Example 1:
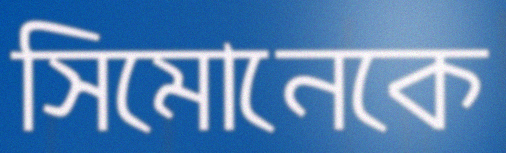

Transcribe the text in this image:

সিমোনেকে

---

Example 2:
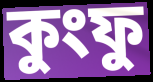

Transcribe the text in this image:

কুংফু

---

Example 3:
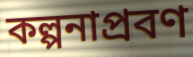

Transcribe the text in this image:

কল্পনাপ্রবণ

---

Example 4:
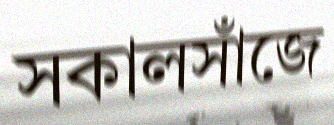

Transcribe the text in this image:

সকালসাঁজে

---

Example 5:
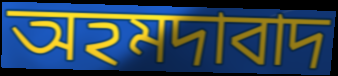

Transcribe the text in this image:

অহমদাবাদ